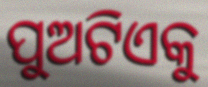
ପୁଅଟିଏକୁ